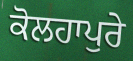
ਕੋਲਹਾਪੁਰੇ